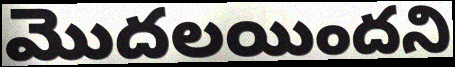
మొదలయిందని